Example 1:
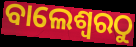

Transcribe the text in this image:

ବାଲେଶ୍ୱରଠୁ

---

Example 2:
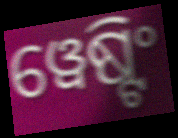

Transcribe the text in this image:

ୱେଷ୍ଟିଂ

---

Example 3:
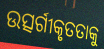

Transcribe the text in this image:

ଉତ୍ସର୍ଗୀକୃତତାକୁ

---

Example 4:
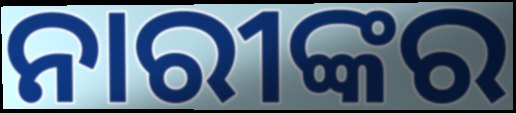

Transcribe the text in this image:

ନାରୀଙ୍କର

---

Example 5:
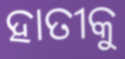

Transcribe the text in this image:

ହାତୀକୁ